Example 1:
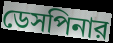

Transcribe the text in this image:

ডেসপিনার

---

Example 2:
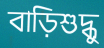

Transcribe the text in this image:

বাড়িশুদ্ধু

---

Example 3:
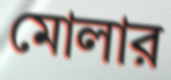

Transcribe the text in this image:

মোলার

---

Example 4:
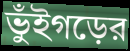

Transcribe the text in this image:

ভুঁইগড়ের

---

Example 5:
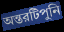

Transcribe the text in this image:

অন্তরটিপুনি